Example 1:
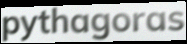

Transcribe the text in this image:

pythagoras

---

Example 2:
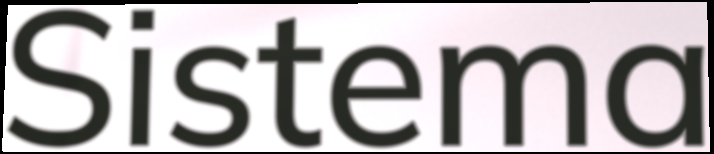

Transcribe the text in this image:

Sistema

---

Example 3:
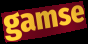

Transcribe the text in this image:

gamse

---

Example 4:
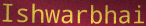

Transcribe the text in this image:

Ishwarbhai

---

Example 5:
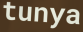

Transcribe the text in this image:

tunya